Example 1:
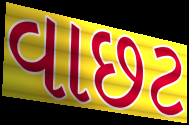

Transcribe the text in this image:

વાછટ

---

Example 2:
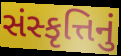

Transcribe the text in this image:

સંસ્કૃત્તિનું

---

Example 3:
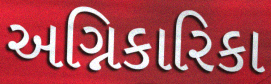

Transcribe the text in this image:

અગ્નિકારિકા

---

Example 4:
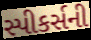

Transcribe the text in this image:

સ્પીકર્સની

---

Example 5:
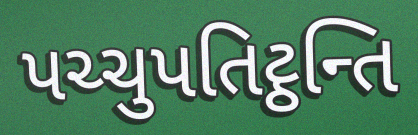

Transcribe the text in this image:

પચ્ચુપતિટ્ઠન્તિ